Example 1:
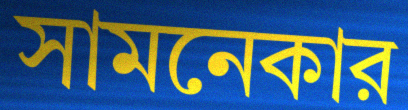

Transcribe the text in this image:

সামনেকার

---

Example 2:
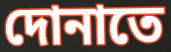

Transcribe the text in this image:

দোনাতে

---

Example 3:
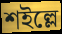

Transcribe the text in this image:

শইল্লে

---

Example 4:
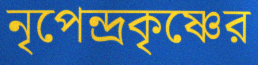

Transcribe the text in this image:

নৃপেন্দ্রকৃষ্ণের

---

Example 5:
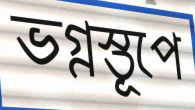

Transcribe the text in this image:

ভগ্নস্তূপে